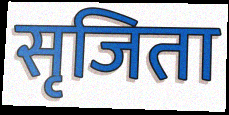
सृजिता